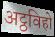
अट्ठविहो